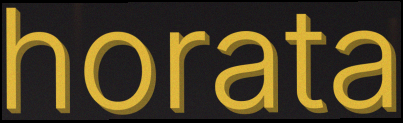
horata